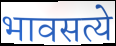
भावसत्ये